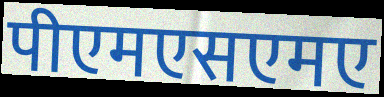
पीएमएसएमए